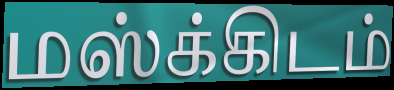
மஸ்க்கிடம்